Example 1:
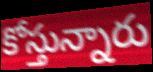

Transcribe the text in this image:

కోస్తున్నారు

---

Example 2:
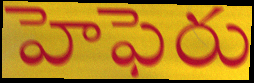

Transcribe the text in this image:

హెఫెరు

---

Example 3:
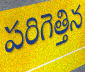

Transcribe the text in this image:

పరిగెత్తిన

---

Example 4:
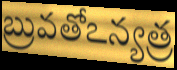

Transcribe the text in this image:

బ్రువతోఽన్యత్ర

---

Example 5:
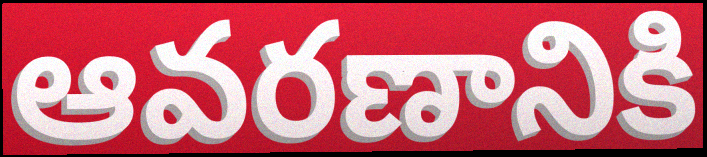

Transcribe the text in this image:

ఆవరణానికి